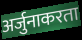
अर्जुनाकरता